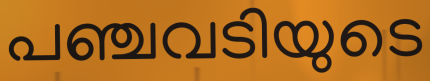
പഞ്ചവടിയുടെ